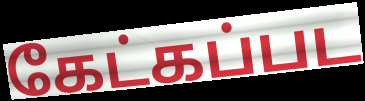
கேட்கப்பட